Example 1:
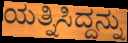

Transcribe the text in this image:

ಯತ್ನಿಸಿದ್ದನ್ನು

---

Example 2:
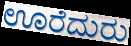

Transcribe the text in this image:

ಊರೆದುರು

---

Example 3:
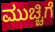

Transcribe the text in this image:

ಮುಚ್ಚಿಗೆ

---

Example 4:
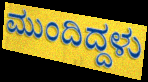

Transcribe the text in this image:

ಮುಂದಿದ್ದಳು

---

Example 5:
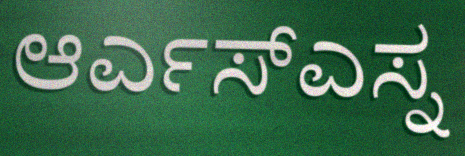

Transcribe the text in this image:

ಆರ್ಎಸ್ಎಸ್ನ